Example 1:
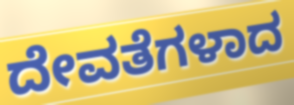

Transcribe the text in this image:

ದೇವತೆಗಳಾದ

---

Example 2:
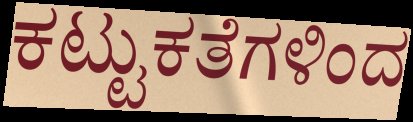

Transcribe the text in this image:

ಕಟ್ಟುಕತೆಗಳಿಂದ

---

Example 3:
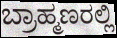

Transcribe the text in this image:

ಬ್ರಾಹ್ಮಣರಲ್ಲಿ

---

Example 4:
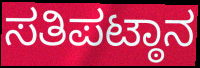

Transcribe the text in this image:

ಸತಿಪಟ್ಠಾನ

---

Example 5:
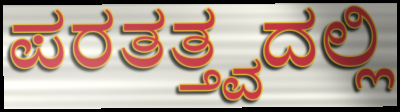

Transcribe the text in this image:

ಪರತತ್ತ್ವದಲ್ಲಿ